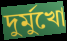
দুর্মুখো